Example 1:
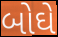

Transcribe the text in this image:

બોઘે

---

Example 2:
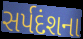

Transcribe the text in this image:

સર્પદંશના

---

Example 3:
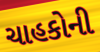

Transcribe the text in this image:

ચાહકોની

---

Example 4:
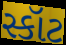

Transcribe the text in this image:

સ્કૉટ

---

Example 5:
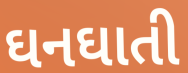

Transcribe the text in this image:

ઘનઘાતી